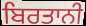
ਬਿਰਤਾਨੀ